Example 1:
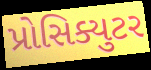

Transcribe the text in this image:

પ્રોસિક્યુટર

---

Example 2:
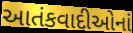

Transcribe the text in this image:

આતંકવાદીઓનાં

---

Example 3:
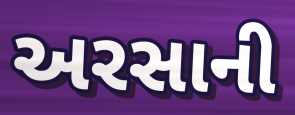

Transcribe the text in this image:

અરસાની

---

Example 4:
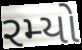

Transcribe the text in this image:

રમ્યો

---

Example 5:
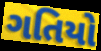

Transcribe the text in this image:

ગતિયો